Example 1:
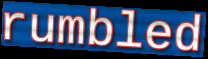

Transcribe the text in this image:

rumbled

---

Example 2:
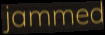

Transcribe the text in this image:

jammed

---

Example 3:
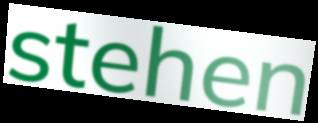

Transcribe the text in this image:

stehen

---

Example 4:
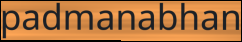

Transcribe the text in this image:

padmanabhan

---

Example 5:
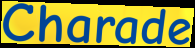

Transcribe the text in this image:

Charade